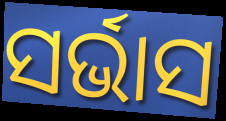
ସର୍ଭାସ